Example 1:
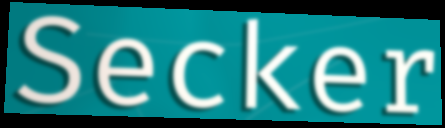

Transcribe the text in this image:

Secker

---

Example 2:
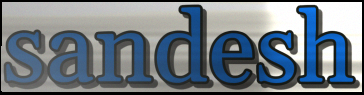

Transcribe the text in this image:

sandesh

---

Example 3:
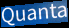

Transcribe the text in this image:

Quanta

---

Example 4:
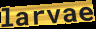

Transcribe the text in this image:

larvae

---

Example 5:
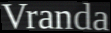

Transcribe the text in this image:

Vranda